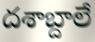
దశాబ్దాలే